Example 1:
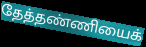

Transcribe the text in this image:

தேத்தண்ணியைக்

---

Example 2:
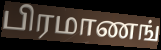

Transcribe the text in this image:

பிரமாணங்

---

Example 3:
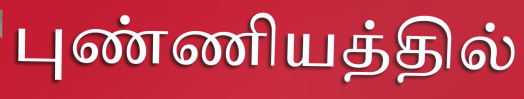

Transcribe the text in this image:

புண்ணியத்தில்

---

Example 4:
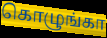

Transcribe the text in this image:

கொழுங்கா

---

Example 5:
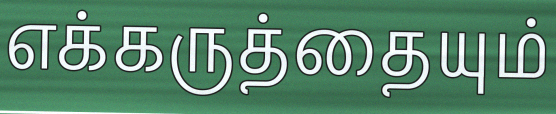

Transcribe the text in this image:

எக்கருத்தையும்